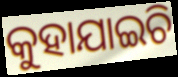
କୁହାଯାଇଚି